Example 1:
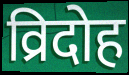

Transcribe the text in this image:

व्रिदोह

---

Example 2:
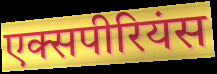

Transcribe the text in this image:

एक्‍सपीरियंस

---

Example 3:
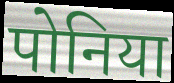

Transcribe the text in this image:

पोनिया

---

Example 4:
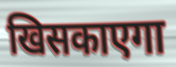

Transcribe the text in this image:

खिसकाएगा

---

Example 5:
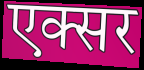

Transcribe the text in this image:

एक्सर